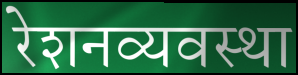
रेशनव्यवस्था